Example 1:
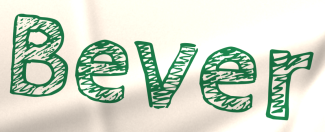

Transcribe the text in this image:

Bever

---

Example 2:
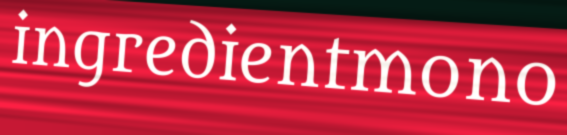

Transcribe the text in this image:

ingredientmono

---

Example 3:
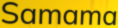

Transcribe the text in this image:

Samama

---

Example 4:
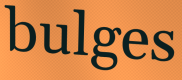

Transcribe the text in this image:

bulges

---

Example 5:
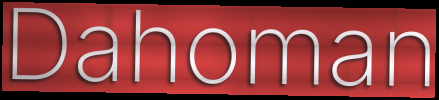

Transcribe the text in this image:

Dahoman